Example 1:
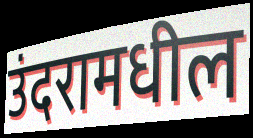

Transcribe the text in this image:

उंदरामधील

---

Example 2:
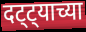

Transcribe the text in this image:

दट्ट्याच्या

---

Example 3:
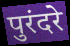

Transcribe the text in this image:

पुरंदरे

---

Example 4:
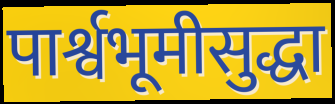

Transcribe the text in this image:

पार्श्वभूमीसुद्धा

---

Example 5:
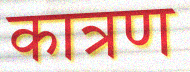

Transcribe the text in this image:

कात्रण